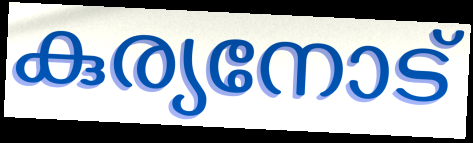
കുര്യനോട്